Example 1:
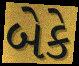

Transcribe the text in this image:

બેકે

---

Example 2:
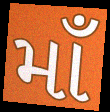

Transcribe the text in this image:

માઁ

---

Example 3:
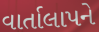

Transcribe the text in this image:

વાર્તાલાપને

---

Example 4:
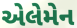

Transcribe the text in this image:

એલેમેન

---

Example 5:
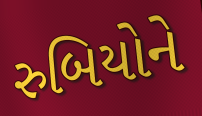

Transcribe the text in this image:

રુબિયોને